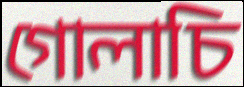
গোলাচি